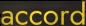
accord